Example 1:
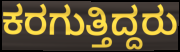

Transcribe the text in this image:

ಕರಗುತ್ತಿದ್ದರು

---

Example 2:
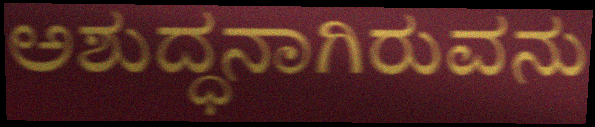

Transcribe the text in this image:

ಅಶುದ್ಧನಾಗಿರುವನು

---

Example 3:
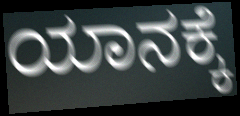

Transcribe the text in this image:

ಯಾನಕ್ಕೆ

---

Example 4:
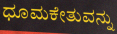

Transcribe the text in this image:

ಧೂಮಕೇತುವನ್ನು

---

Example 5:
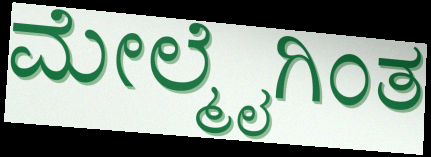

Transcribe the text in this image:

ಮೇಲ್ಮೈಗಿಂತ